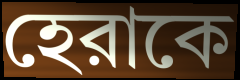
হেরাকে